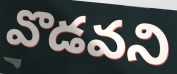
వొడవని